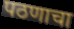
पठणाचा